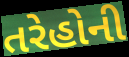
તરેહોની